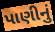
પાણીનું